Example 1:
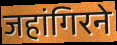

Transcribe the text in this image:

जहांगिरने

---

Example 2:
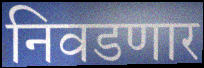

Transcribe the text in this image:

निवडणार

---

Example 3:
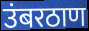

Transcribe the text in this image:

उंबरठाण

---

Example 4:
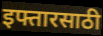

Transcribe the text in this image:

इफ्तारसाठी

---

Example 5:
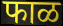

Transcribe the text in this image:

फाळ